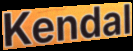
Kendal